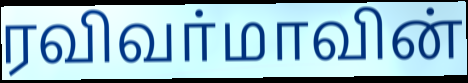
ரவிவர்மாவின்